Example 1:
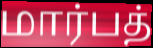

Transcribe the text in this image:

மார்பத்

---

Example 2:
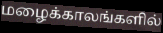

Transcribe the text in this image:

மழைக்காலங்களில்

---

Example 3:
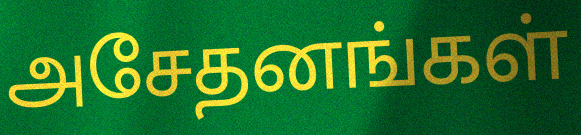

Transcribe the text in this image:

அசேதனங்கள்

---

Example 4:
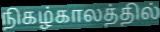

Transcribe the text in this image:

நிகழ்காலத்தில்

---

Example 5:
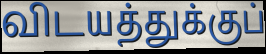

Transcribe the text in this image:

விடயத்துக்குப்